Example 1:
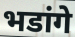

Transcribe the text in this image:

भडांगे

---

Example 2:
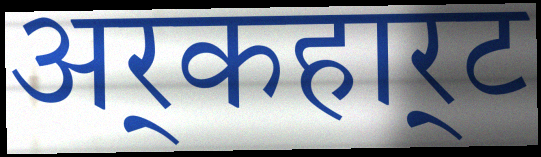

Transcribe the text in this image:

अर्कहार्ट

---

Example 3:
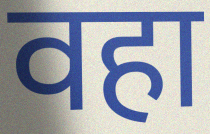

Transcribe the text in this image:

वहा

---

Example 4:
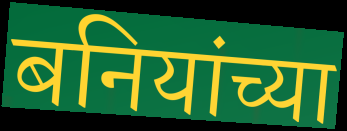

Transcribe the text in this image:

बनियांच्या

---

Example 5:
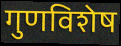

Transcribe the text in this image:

गुणविशेष